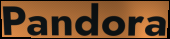
Pandora